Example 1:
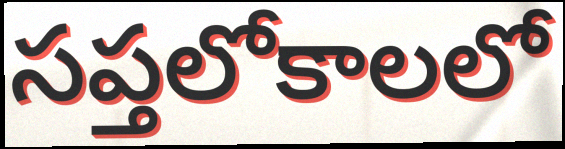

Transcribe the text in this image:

సప్తలోకాలలో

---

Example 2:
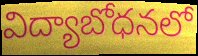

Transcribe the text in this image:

విద్యాబోధనలో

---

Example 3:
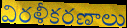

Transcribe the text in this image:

విరళీకరణాలు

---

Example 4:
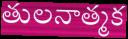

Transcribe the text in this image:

తులనాత్మక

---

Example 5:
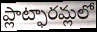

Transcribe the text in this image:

ప్లాట్ఫారమ్లలో